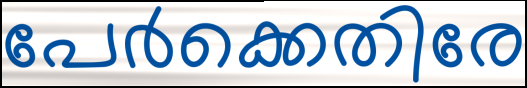
പേർക്കെതിരേ